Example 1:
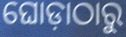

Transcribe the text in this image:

ଘୋଡ଼ାଠାରୁ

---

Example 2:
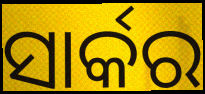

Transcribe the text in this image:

ସାର୍କର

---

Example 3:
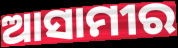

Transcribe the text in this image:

ଆସାମୀର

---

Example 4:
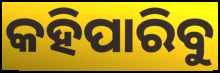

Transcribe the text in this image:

କହିପାରିବୁ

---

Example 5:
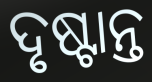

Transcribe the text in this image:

ଦୃଷ୍ଟାନ୍ତ